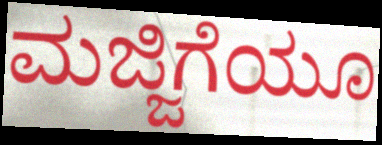
ಮಜ್ಜಿಗೆಯೂ